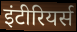
इंटीरियर्स